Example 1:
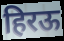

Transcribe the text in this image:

हिरऊ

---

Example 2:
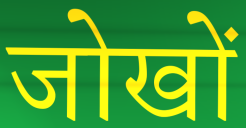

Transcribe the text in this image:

जोखों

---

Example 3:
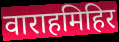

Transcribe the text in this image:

वाराहमिहिर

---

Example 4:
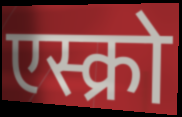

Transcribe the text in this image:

एस्क्रो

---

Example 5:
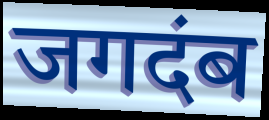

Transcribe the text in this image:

जगदंब